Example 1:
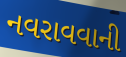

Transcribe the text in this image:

નવરાવવાની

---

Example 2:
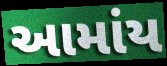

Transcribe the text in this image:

આમાંય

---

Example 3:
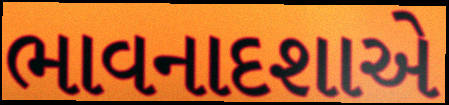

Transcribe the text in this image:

ભાવનાદશાએ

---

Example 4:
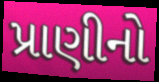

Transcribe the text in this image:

પ્રાણીનો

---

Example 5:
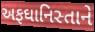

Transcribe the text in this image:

અફઘાનિસ્તાને